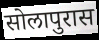
सोलापुरास